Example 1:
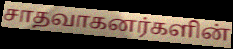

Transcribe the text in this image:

சாதவாகனர்களின்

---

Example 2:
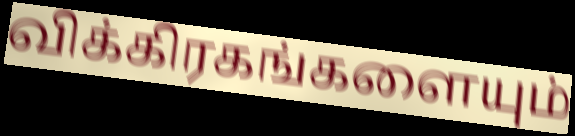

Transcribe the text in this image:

விக்கிரகங்களையும்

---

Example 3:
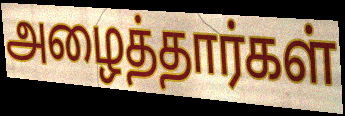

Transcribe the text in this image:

அழைத்தார்கள்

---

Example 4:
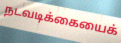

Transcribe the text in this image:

நடவடிக்கையைக்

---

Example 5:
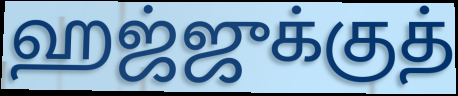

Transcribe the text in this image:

ஹஜ்ஜுக்குத்